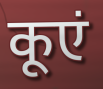
कूएं